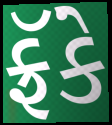
ફ્રૅંકે